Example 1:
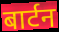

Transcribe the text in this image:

बार्टन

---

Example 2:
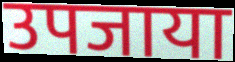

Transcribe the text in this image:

उपजाया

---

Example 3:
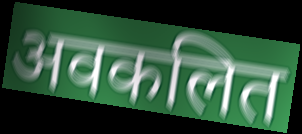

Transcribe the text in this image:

अवकलित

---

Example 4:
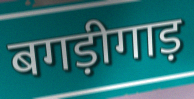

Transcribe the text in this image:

बगड़ीगाड़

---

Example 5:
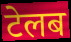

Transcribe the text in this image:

टेलब